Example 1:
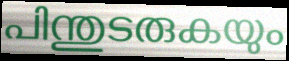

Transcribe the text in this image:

പിന്തുടരുകയും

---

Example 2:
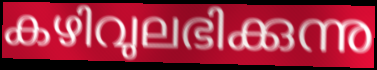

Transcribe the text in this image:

കഴിവുലഭിക്കുന്നു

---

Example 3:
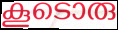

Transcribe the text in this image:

കൂടൊരു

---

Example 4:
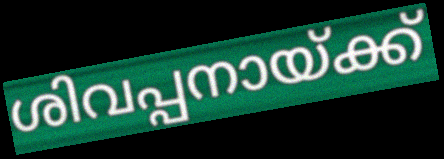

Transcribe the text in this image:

ശിവപ്പനായ്ക്ക്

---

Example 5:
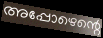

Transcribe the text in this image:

അപ്പോഴെന്റെ